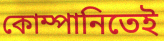
কোম্পানিতেই